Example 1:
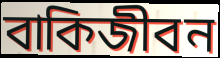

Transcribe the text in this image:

বাকিজীবন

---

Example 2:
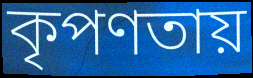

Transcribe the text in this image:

কৃপণতায়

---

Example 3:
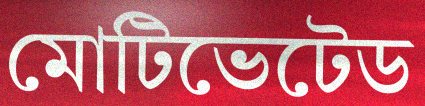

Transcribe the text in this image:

মোটিভেটেড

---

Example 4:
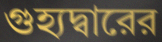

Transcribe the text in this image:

গুহ্যদ্বারের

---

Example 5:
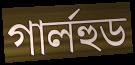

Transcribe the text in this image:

গার্লহুড